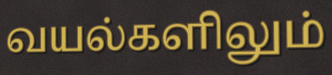
வயல்களிலும்